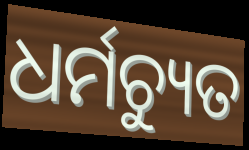
ଧର୍ମଚ୍ୟୁତ